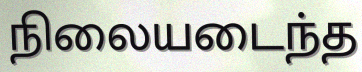
நிலையடைந்த